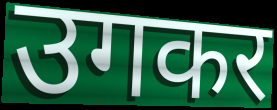
उगकर